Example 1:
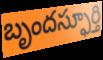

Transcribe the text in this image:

బృందస్ఫూర్తి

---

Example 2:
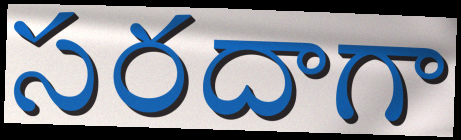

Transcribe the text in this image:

సరదాగా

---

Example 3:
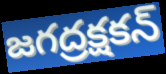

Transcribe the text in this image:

జగద్రక్షకన్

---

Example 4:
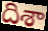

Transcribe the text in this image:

దిశా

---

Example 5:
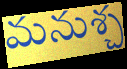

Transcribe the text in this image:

మనుశ్చ